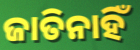
ଜାତିନାହିଁ